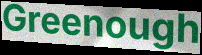
Greenough